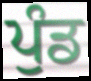
ਪੁੰਡ